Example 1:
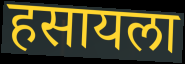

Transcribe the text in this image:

हसायला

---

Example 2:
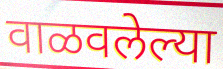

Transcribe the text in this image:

वाळवलेल्या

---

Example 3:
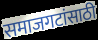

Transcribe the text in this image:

समाजगटांसाठी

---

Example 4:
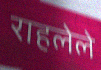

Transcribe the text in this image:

राहलेले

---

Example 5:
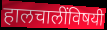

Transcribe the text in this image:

हालचालींविषयी